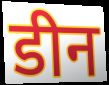
डीन